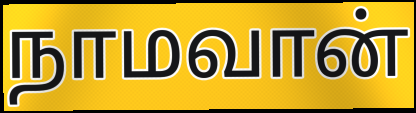
நாமவான்